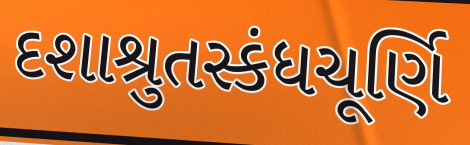
દશાશ્રુતસ્કંધચૂર્ણિ